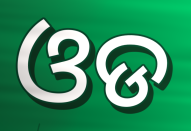
ଓଡ